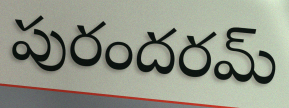
పురందరమ్